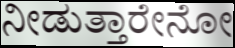
ನೀಡುತ್ತಾರೇನೋ